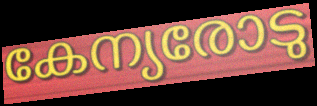
കേന്യരോടു